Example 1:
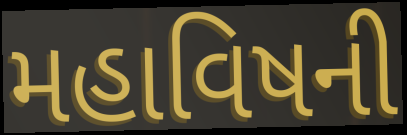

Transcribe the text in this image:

મહાવિષની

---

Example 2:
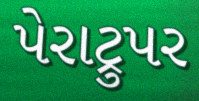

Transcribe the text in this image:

પેરાટ્રુપર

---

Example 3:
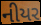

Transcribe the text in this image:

નીયર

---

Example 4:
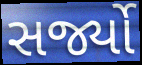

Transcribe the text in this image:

સર્જ્યો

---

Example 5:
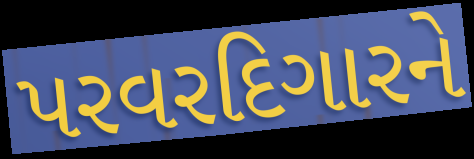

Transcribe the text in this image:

પરવરદિગારને